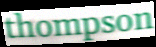
thompson